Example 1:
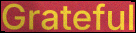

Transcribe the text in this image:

Grateful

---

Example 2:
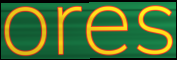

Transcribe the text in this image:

ores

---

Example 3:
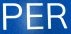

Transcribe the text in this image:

PER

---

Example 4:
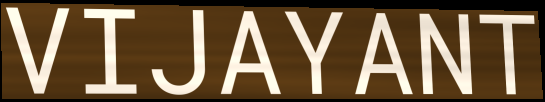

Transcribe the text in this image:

VIJAYANT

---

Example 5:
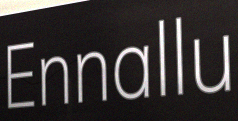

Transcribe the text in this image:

Ennallu